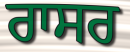
ਰਾਸਰ